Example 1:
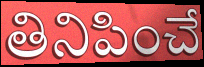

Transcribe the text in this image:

తినిపించే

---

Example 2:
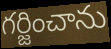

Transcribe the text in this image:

గర్జించాను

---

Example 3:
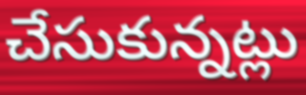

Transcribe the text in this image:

చేసుకున్నట్లు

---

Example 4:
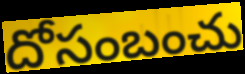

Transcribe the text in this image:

దోసంబంచు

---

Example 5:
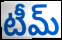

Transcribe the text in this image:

టీమ్